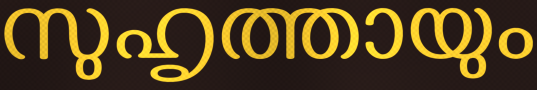
സുഹൃത്തായും